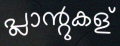
പ്ലാന്റുകള്